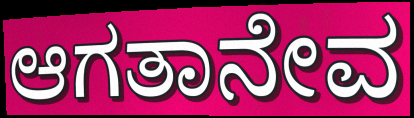
ಆಗತಾನೇವ